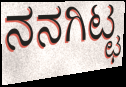
ನನಗಿಟ್ಟ